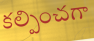
కల్పించగా